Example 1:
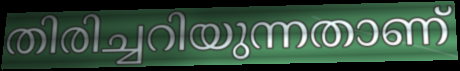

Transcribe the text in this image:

തിരിച്ചറിയുന്നതാണ്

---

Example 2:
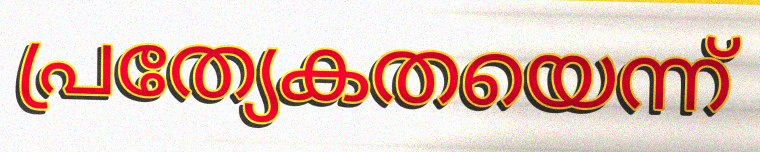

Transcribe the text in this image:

പ്രത്യേകതയെന്ന്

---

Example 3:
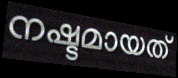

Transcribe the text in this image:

നഷ്ടമായത്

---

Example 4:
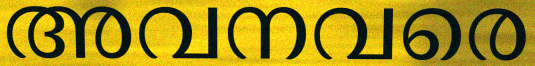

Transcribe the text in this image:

അവനവരെ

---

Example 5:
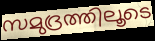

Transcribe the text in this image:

സമുദ്രത്തിലൂടെ